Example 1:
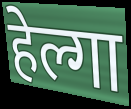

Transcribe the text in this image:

हेल्गा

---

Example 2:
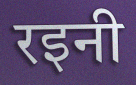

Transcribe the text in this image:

रइनी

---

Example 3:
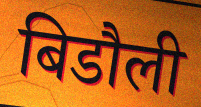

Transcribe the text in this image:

बिडौली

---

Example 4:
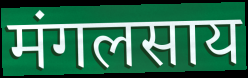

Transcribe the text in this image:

मंगलसाय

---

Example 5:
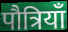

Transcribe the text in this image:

पौत्रियाँ